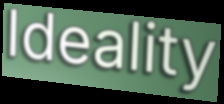
Ideality